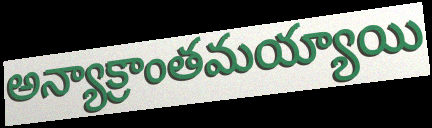
అన్యాక్రాంతమయ్యాయి